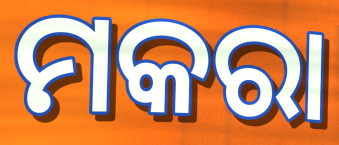
ମକରା